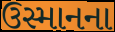
ઉસ્માનના